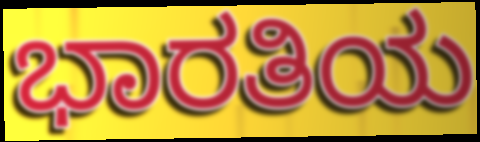
ಭಾರತಿಯ